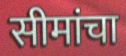
सीमांचा